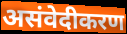
असंवेदीकरण